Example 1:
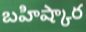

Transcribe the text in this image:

బహిష్కార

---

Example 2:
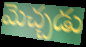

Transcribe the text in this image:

మెచ్చడు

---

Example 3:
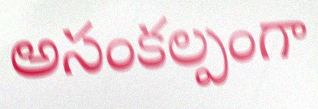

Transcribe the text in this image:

అసంకల్పంగా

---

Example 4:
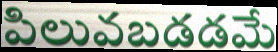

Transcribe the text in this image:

పిలువబడడమే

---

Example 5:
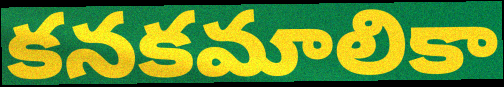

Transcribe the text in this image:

కనకమాలికా